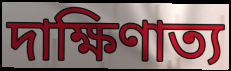
দাক্ষিণাত্য